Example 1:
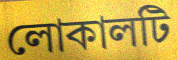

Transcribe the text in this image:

লোকালটি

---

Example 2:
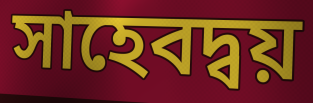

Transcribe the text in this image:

সাহেবদ্বয়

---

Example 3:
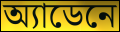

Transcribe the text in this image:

অ্যাডেনে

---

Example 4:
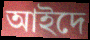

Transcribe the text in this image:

আইদে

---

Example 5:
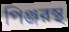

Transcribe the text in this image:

পিঞ্জরস্থ